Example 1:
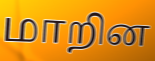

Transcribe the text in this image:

மாறின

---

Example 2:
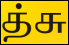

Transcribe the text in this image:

த்சு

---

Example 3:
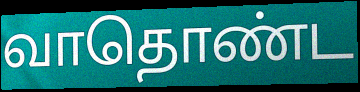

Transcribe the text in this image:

வாதொண்ட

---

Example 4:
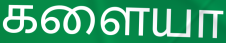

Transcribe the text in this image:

களையா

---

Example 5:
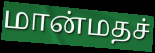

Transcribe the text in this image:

மான்மதச்